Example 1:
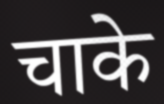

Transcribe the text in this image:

चाके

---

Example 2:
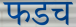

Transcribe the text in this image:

फडच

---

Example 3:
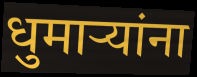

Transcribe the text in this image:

धुमाऱ्यांना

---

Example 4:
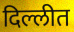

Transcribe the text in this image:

दिल्लीत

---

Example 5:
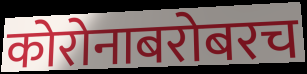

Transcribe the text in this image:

कोरोनाबरोबरच